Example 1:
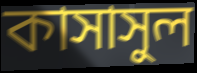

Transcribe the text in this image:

কাসাসুল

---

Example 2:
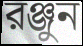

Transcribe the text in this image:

রঞ্জুন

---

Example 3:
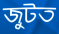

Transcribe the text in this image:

জুটত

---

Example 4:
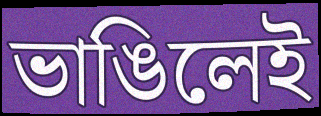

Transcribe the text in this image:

ভাঙিলেই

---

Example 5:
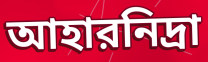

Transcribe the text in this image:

আহারনিদ্রা